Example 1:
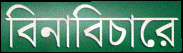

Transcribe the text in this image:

বিনাবিচারে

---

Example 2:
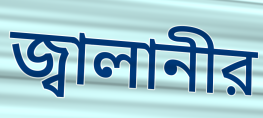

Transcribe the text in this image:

জ্বালানীর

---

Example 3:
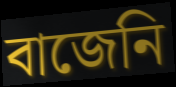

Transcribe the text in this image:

বাজেনি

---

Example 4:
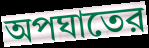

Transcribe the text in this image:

অপঘাতের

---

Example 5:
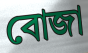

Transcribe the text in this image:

বোজা